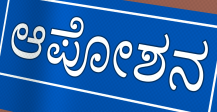
ಆಪೋಶನ